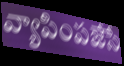
వ్యాపింపజేసే